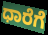
ಧಾರೆಗೆ